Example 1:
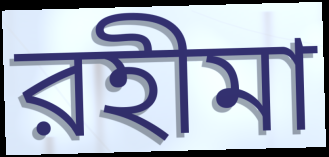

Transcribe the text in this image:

রহীমা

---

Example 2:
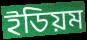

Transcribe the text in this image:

ইডিয়ম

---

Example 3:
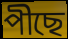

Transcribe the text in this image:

পীছে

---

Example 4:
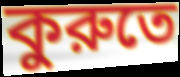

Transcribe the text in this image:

কুরুতে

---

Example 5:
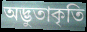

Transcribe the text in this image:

অদ্ভুতাকৃতি